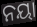
ନୟା